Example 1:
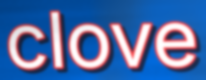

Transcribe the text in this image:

clove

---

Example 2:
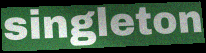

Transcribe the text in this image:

singleton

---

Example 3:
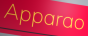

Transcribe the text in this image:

Apparao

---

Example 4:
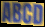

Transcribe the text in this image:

ABCD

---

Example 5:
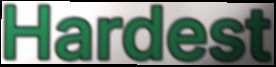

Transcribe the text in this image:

Hardest